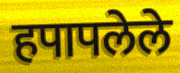
हपापलेले